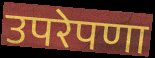
उपरेपणा